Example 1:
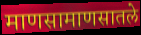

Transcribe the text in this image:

माणसामाणसातले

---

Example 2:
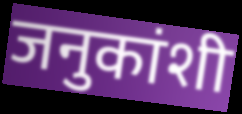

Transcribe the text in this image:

जनुकांशी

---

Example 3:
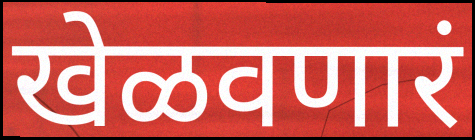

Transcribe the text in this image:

खेळवणारं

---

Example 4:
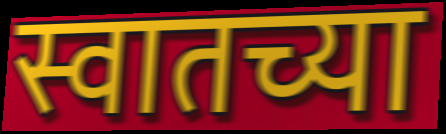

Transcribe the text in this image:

स्वातच्या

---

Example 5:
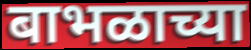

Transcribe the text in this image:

बाभळाच्या